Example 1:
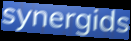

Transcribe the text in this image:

synergids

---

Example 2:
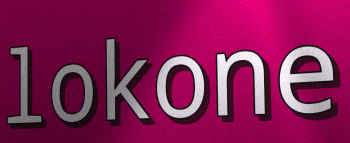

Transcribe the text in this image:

lokone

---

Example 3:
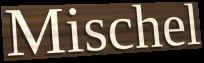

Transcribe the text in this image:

Mischel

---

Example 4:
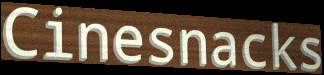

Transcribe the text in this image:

Cinesnacks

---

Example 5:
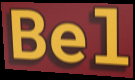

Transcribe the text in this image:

Bel